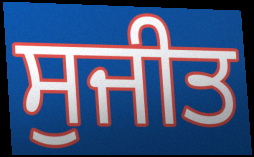
ਸੁਜੀਤ